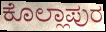
ಕೊಲ್ಲಾಪುರ